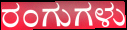
ರಂಗುಗಳು